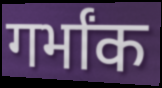
गर्भांक